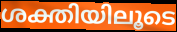
ശക്തിയിലൂടെ